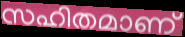
സഹിതമാണ്